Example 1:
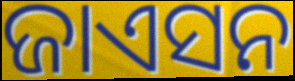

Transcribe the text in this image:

ଜାଏସନ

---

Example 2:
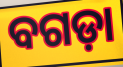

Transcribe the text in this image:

ବଗଡ଼ା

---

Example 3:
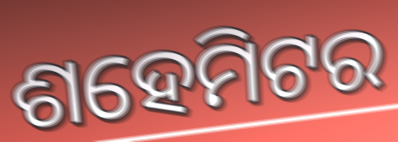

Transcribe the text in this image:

ଶହେମିଟର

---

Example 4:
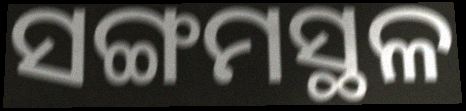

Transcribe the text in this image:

ସଙ୍ଗମସ୍ଥଳ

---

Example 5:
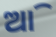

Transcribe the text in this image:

ଆି